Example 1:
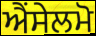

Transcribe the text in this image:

ਐਂਸੇਲਮੋ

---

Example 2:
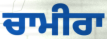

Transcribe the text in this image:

ਚਾਮੀਰਾ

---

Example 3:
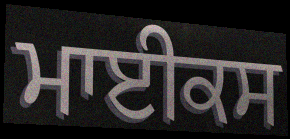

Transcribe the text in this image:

ਮਾਈਕਸ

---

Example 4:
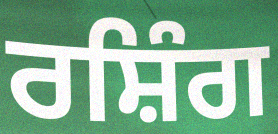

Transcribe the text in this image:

ਰਸ਼ਿੰਗ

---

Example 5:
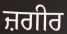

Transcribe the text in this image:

ਜ਼ਗੀਰ